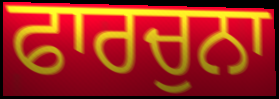
ਫਾਰਚੁਨਾ